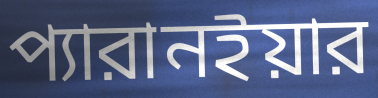
প্যারানইয়ার